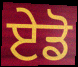
ਏਡੋ